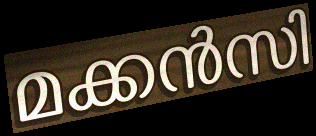
മക്കൻസി